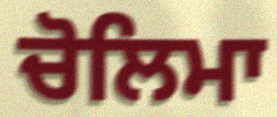
ਚੋਲਿਮਾ